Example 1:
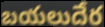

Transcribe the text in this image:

బయలుదేర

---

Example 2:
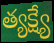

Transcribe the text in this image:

త్యక్ష్యే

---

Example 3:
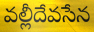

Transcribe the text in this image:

వల్లీదేవసేన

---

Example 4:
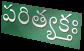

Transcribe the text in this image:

పరిత్యక్తః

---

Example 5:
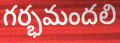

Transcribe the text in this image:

గర్భమందలి